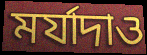
মর্যাদাও